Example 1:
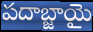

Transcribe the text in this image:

పదాబ్జాయై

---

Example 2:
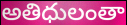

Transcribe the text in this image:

అతిధులంతా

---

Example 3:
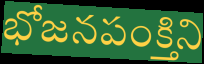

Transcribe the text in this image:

భోజనపంక్తిని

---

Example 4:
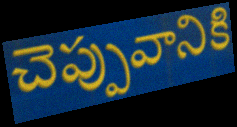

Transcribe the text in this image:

చెప్పువానికి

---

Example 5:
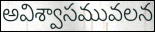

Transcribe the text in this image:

అవిశ్వాసమువలన